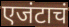
एजंटाचं